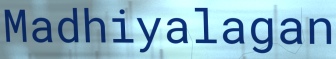
Madhiyalagan